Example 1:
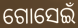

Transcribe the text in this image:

ଗୋସେଇଁ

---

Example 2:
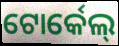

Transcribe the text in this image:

ଟୋର୍କେଲ୍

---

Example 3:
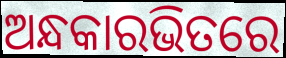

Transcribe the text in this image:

ଅନ୍ଧକାରଭିତରେ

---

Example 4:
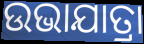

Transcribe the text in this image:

ଉଭାଯାତ୍ରା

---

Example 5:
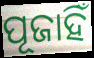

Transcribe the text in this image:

ପୂଜାହିଁ